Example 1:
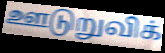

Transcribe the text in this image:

ஊடுறுவிக்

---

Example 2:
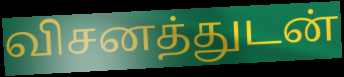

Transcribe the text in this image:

விசனத்துடன்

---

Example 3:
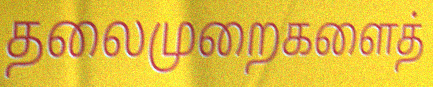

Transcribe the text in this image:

தலைமுறைகளைத்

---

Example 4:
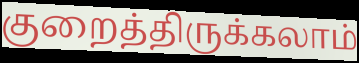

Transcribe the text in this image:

குறைத்திருக்கலாம்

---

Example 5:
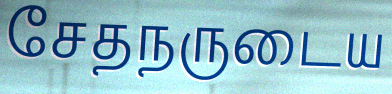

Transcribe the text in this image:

சேதநருடைய